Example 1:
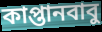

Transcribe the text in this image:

কাপ্তানবাবু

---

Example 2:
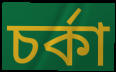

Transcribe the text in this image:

চর্কা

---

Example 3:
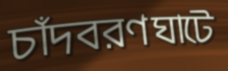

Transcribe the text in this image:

চাঁদবরণঘাটে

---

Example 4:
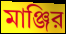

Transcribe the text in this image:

মাঞ্জির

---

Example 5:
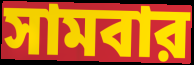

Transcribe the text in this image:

সামবার